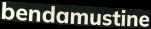
bendamustine